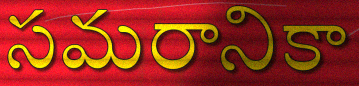
సమరానికా